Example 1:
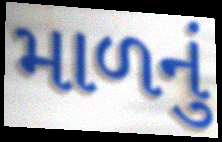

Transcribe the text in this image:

માળનું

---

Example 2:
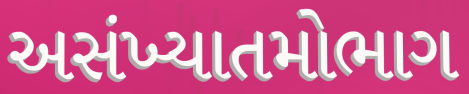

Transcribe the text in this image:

અસંખ્યાતમોભાગ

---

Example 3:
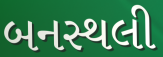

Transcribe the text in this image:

બનસ્થલી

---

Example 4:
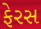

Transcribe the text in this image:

ફેરસ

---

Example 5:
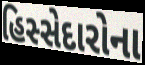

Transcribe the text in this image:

હિસ્સેદારોના